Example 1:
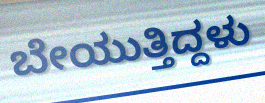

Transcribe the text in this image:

ಬೇಯುತ್ತಿದ್ದಳು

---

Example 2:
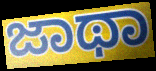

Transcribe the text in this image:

ಜಾಥಾ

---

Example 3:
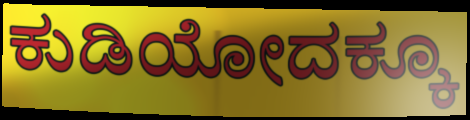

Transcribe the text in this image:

ಕುಡಿಯೋದಕ್ಕೂ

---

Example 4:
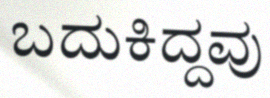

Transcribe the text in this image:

ಬದುಕಿದ್ದವು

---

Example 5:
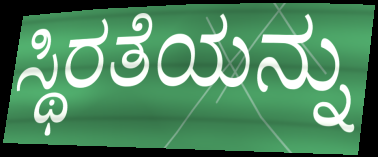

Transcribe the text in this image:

ಸ್ಥಿರತೆಯನ್ನು